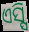
ଏସ୍ସି